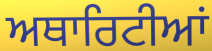
ਅਥਾਰਿਟੀਆਂ